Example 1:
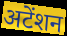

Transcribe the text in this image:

अटेंशन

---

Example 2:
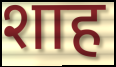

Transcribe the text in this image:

शाह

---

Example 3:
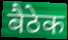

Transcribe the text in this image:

बैठेक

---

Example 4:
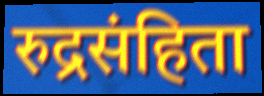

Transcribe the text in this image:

रुद्रसंहिता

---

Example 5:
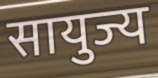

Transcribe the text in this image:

सायुज्य